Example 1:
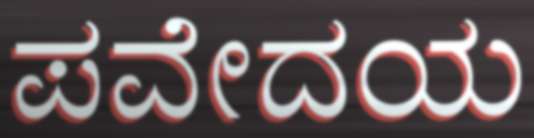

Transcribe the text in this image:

ಪವೇದಯ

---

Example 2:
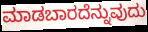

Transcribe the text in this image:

ಮಾಡಬಾರದೆನ್ನುವುದು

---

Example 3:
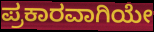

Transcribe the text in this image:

ಪ್ರಕಾರವಾಗಿಯೇ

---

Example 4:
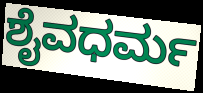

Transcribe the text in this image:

ಶೈವಧರ್ಮ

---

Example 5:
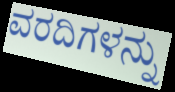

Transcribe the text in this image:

ವರದಿಗಳನ್ನು